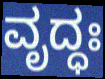
ವೃದ್ಧಃ